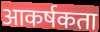
आकर्षकता